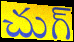
చుగ్